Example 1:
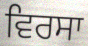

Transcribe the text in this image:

ਵਿਰਸਾ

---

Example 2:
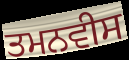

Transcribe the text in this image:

ਤਮਨਵੀਸ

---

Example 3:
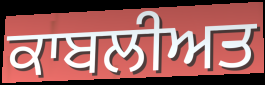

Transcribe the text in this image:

ਕਾਬਲੀਅਤ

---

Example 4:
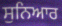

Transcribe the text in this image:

ਸੁਨਿਆਰ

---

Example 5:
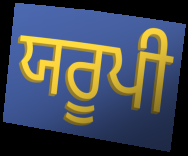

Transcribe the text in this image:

ਯਰੂਪੀ